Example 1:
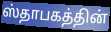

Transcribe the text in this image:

ஸ்தாபகத்தின்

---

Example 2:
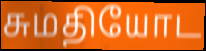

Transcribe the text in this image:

சுமதியோட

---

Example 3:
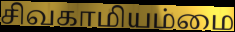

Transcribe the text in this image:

சிவகாமியம்மை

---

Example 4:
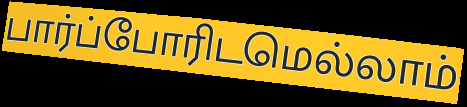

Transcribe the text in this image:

பார்ப்போரிடமெல்லாம்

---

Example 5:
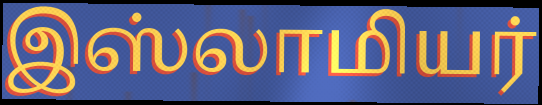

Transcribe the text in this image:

இஸ்லாமியர்